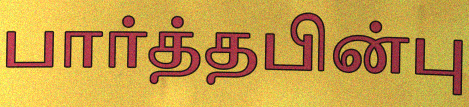
பார்த்தபின்பு